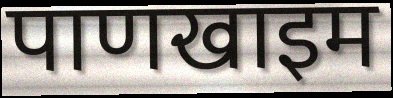
पाणखाइम